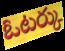
ఓటర్కు